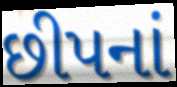
છીપનાં